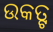
ଉକତ୍ଟ